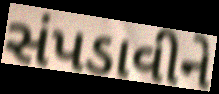
સંપડાવીને